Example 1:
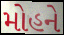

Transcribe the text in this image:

મોહને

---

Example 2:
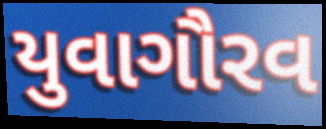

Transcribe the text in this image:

યુવાગૌરવ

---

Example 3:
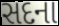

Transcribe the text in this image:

સદના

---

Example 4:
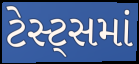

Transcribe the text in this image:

ટેસ્ટ્સમાં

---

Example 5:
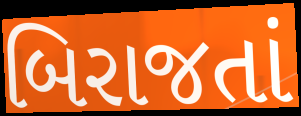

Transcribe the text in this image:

બિરાજતાં